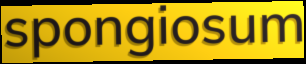
spongiosum